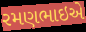
રમણભાઇએ